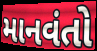
માનવંતો